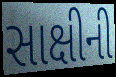
સાક્ષીની